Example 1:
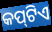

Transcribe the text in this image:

କପ୍‍ଟିଏ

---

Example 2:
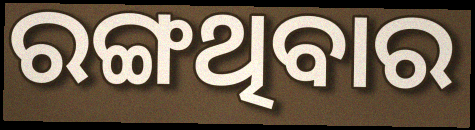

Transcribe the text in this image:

ରଙ୍ଗଥିବାର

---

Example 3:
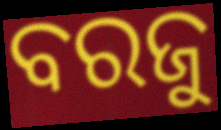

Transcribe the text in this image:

ବରଜୁ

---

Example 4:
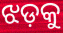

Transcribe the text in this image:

ଝଡ଼କୁ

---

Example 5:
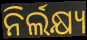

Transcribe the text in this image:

ନିର୍ଲକ୍ଷ୍ୟ